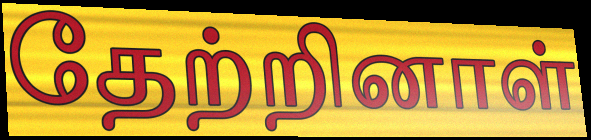
தேற்றினாள்